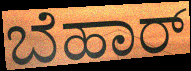
ಬೆಹಾರ್